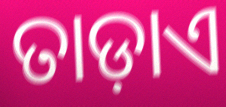
ତାଡ଼ାଏ